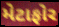
મેટાફોર